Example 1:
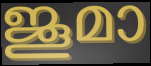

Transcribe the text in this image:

ജൂമാ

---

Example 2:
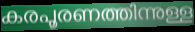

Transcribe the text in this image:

കരപൂരണത്തിന്നുള്ള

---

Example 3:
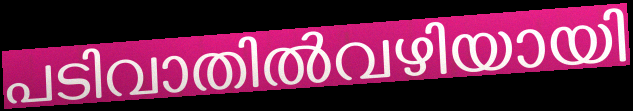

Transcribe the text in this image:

പടിവാതിൽവഴിയായി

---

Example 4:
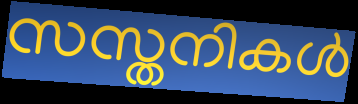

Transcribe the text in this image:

സസ്തനികൾ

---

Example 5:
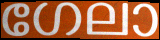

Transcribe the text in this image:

ഗേലാ